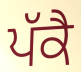
ਪੱਕੈ